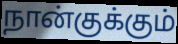
நான்குக்கும்